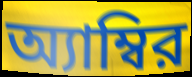
অ্যাম্বির